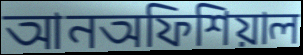
আনঅফিশিয়াল